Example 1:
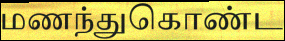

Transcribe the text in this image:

மணந்துகொண்ட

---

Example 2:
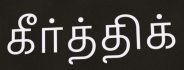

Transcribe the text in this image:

கீர்த்திக்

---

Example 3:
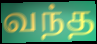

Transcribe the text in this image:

வந்த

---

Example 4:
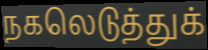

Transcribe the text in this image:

நகலெடுத்துக்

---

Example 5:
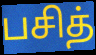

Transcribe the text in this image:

பசித்